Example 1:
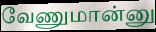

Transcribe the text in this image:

வேணுமான்னு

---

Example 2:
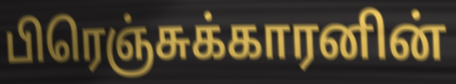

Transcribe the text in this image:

பிரெஞ்சுக்காரனின்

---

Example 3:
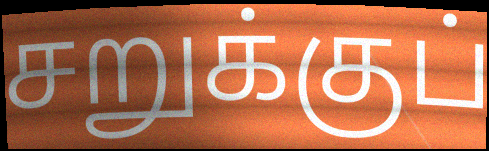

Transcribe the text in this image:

சறுக்குப்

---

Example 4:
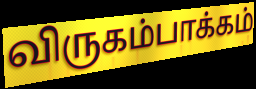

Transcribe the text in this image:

விருகம்பாக்கம்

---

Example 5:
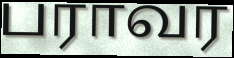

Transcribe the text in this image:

பராவர